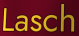
Lasch